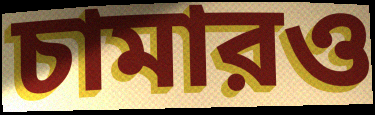
চামারও